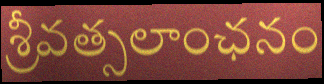
శ్రీవత్సలాంఛనం